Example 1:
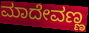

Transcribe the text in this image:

ಮಾದೇವಣ್ಣ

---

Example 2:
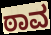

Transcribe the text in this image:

ಠಾವ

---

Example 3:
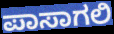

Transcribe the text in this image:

ಪಾಸಾಗಲಿ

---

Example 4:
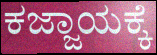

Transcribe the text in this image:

ಕಜ್ಜಾಯಕ್ಕೆ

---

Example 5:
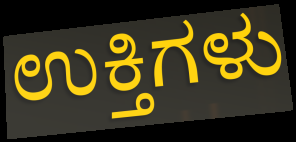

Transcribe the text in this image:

ಉಕ್ತಿಗಳು